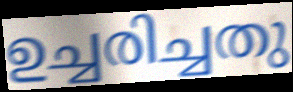
ഉച്ചരിച്ചതു